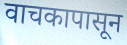
वाचकापासून